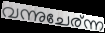
വന്നുചേര്ന്ന